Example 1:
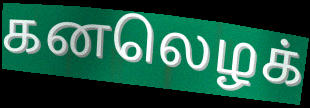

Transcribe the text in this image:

கனலெழக்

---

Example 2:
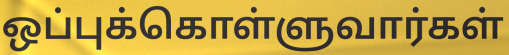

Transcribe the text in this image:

ஒப்புக்கொள்ளுவார்கள்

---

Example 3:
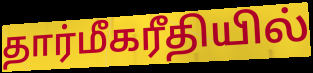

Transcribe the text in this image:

தார்மீகரீதியில்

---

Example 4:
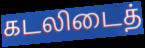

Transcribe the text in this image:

கடலிடைத்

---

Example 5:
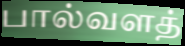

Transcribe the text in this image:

பால்வளத்